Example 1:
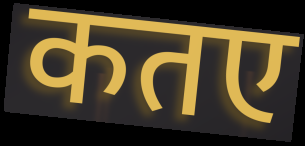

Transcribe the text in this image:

कतए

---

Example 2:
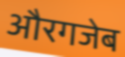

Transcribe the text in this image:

औरगजेब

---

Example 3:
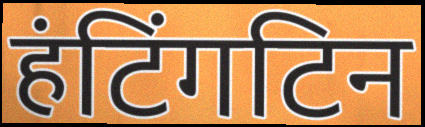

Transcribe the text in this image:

हंटिंगटिन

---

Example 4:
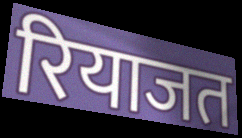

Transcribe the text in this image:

रियाजत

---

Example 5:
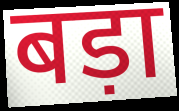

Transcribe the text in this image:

बड़ा